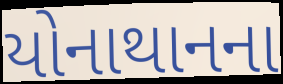
યોનાથાનના